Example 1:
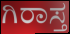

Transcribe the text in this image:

ಗಿರಾಸ್ತ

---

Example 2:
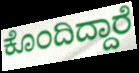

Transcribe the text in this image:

ಕೊಂದಿದ್ದಾರೆ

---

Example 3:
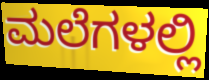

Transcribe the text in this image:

ಮಲೆಗಳಲ್ಲಿ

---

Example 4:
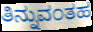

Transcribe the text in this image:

ತಿನ್ನುವಂತಹ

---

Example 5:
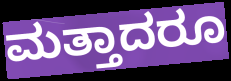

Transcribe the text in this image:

ಮತ್ತಾದರೂ